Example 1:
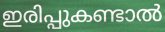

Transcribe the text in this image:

ഇരിപ്പുകണ്ടാൽ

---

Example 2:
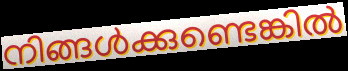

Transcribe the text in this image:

നിങ്ങൾക്കുണ്ടെങ്കിൽ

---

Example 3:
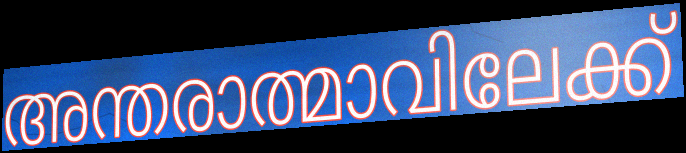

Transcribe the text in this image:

അന്തരാത്മാവിലേക്ക്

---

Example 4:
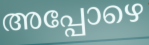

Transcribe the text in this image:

അപ്പോഴെ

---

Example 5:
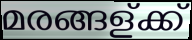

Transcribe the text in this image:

മരങ്ങള്ക്ക്